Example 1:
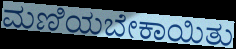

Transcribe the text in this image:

ಮಣಿಯಬೇಕಾಯಿತು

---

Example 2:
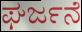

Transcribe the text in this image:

ಘರ್ಜನೆ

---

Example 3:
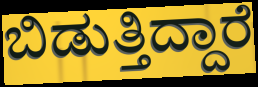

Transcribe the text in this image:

ಬಿಡುತ್ತಿದ್ದಾರೆ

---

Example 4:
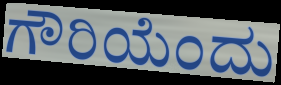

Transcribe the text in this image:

ಗೌರಿಯೆಂದು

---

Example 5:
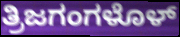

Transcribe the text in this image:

ತ್ರಿಜಗಂಗಳೊಳ್